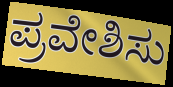
ಪ್ರವೇಶಿಸು